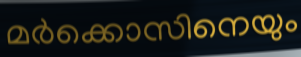
മർക്കൊസിനെയും